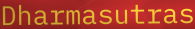
Dharmasutras